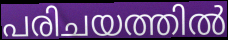
പരിചയത്തിൽ